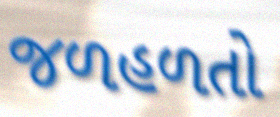
જળહળતો